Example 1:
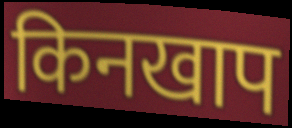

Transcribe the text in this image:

किनखाप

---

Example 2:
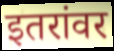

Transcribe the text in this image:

इतरांवर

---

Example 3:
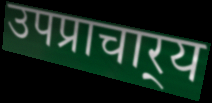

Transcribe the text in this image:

उपप्राचार्य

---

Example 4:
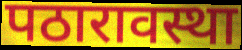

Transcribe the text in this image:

पठारावस्था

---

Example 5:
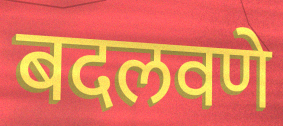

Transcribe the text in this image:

बदलवणे